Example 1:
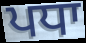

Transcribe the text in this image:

ਪਧਾ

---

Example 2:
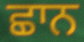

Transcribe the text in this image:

ਛਾਨ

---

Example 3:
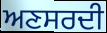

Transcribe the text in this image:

ਅਣਸਰਦੀ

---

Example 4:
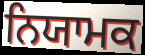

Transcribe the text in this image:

ਨਿਯਾਮਕ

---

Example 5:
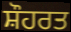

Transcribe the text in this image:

ਸ਼ੌਹਰਤ